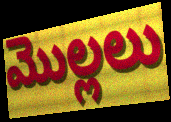
మొల్లలు